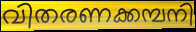
വിതരണക്കമ്പനി